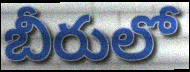
బీరులో